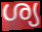
ശ്യ